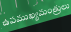
ఉపముఖ్యమంత్రులు